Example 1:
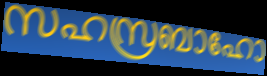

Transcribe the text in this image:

സഹസ്രബാഹോ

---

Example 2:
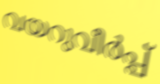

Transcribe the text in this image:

വയറുവീർപ്പ്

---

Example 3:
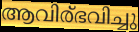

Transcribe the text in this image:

ആവിര്ഭവിച്ചു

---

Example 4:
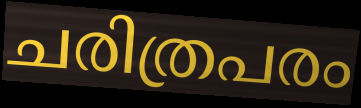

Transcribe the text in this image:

ചരിത്രപരം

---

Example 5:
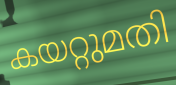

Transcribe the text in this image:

കയറ്റുമതി